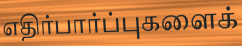
எதிர்பார்ப்புகளைக்